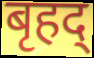
बृहद्